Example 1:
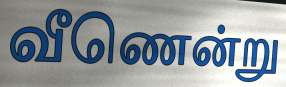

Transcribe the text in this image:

வீணென்று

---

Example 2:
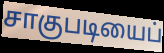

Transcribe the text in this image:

சாகுபடியைப்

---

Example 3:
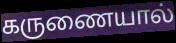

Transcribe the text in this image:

கருணையால்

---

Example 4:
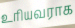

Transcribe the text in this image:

உரியவராக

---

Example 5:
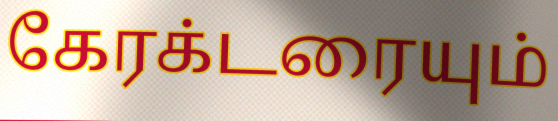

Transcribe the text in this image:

கேரக்டரையும்